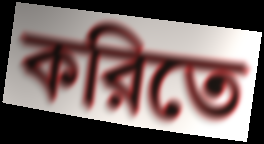
করিতে